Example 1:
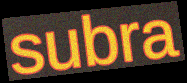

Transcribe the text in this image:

subra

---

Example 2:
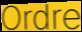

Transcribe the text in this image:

Ordre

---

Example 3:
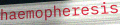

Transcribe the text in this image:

haemopheresis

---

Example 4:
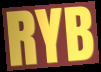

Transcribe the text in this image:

RYB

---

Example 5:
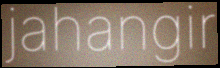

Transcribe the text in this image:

jahangir